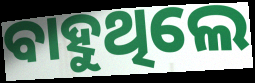
ବାହୁଥିଲେ